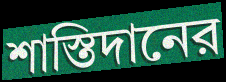
শাস্তিদানের